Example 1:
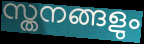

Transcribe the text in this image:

സ്തനങ്ങളും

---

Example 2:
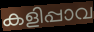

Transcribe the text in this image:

കളിപ്പാവ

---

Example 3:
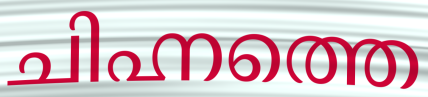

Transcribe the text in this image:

ചിഹ്നത്തെ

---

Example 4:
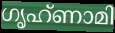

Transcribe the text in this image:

ഗൃഹ്ണാമി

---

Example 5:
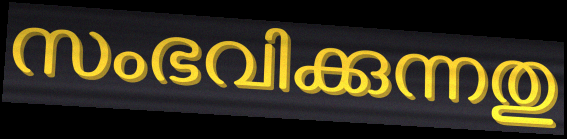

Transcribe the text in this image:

സംഭവിക്കുന്നതു